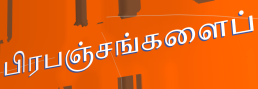
பிரபஞ்சங்களைப்